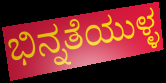
ಭಿನ್ನತೆಯುಳ್ಳ